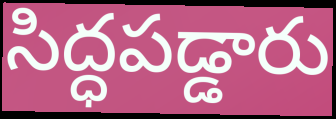
సిద్ధపడ్డారు